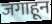
जगाहून